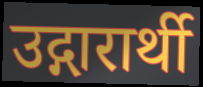
उद्गारार्थी